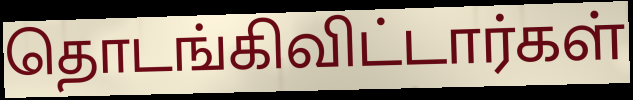
தொடங்கிவிட்டார்கள்